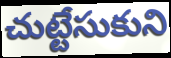
చుట్టేసుకుని